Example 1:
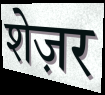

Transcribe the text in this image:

शेज़र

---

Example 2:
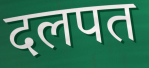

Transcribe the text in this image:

दलपत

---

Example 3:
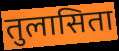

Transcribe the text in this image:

तुलासिता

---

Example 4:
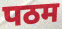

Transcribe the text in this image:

पठम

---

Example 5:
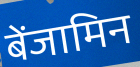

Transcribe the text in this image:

बेंजामिन